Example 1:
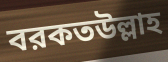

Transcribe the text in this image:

বরকতউল্লাহ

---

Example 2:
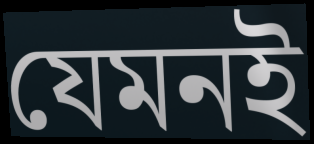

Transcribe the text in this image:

যেমনই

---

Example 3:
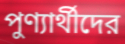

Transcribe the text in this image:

পুণ্যার্থীদের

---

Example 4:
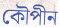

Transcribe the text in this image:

কৌপীন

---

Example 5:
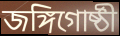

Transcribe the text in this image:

জঙ্গিগোষ্ঠী